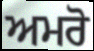
ਅਮਰੋ